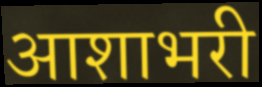
आशाभरी